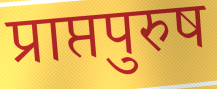
प्राप्तपुरुष